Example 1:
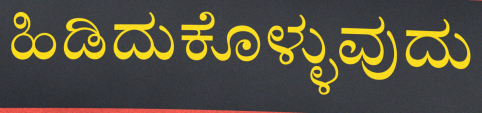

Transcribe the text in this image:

ಹಿಡಿದುಕೊಳ್ಳುವುದು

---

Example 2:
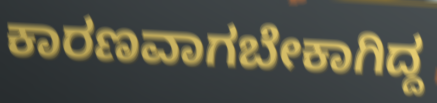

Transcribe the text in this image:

ಕಾರಣವಾಗಬೇಕಾಗಿದ್ದ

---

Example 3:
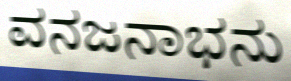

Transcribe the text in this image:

ವನಜನಾಭನು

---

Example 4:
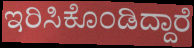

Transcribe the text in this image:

ಇರಿಸಿಕೊಂಡಿದ್ದಾರೆ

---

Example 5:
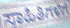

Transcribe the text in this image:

ಸಾಹಿತಿಗಳಿಗೆ